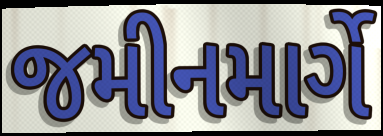
જમીનમાર્ગે